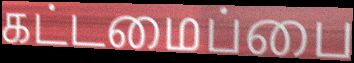
கட்டமைப்பை